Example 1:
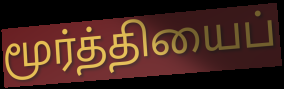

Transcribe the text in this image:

மூர்த்தியைப்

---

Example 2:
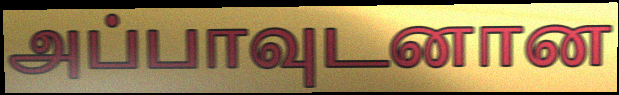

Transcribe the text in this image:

அப்பாவுடனான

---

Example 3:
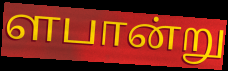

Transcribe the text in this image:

ளபான்று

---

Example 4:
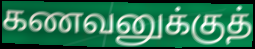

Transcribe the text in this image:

கணவனுக்குத்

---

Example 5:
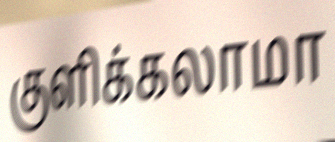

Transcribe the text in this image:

குளிக்கலாமா